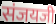
संजयजी